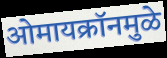
ओमायक्रॉनमुळे